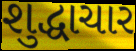
શુદ્ધાચાર